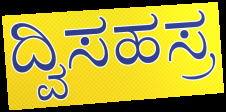
ದ್ವಿಸಹಸ್ರ